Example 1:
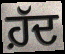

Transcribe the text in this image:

ਹ਼ੱਦ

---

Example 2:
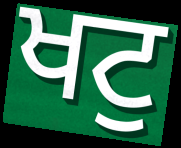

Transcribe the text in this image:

ਖਟੁ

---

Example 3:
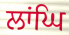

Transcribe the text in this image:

ਲਾਂਘਿ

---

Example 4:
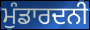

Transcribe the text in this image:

ਮੁੰਡਾਰਦਨੀ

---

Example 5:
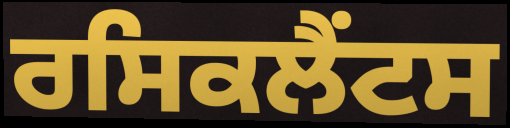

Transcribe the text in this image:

ਰਸਿਕਲੈਂਟਸ